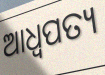
ଆଧ୍ଵପତ୍ୟ